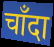
चाँदा